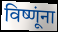
विष्णूंना